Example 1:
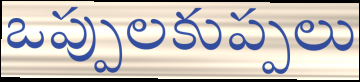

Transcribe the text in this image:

ఒప్పులకుప్పలు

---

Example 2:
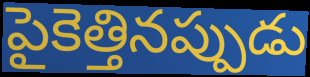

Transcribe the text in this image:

పైకెత్తినప్పుడు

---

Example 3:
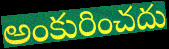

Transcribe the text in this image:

అంకురించదు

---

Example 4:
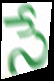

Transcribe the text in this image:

సే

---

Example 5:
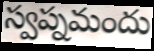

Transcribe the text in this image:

స్వప్నమందు